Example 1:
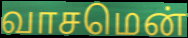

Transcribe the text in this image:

வாசமென்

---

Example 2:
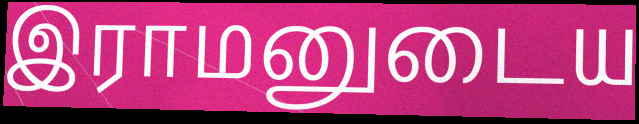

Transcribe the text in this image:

இராமனுடைய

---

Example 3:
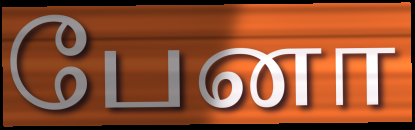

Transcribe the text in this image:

பேனா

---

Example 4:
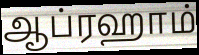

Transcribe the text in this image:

ஆப்ரஹாம்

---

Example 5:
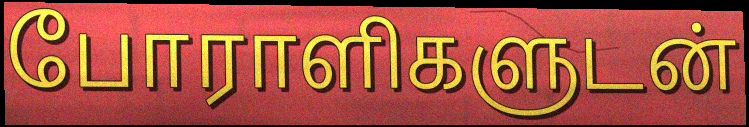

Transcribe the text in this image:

போராளிகளுடன்